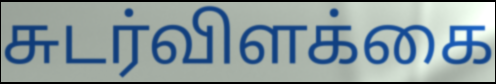
சுடர்விளக்கை